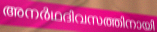
അനർഥദിവസത്തിനായി